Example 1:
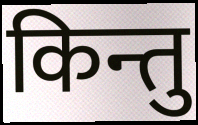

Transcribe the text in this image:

किन्‍तु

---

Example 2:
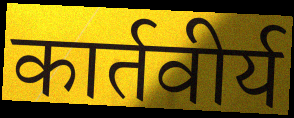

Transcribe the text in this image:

कार्तवीर्य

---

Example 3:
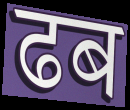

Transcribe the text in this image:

ढब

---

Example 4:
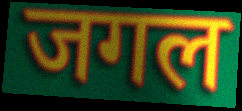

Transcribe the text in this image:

जगल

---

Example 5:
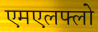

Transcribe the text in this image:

एमएलफ्लो